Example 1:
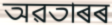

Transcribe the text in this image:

অৱতাৰৰ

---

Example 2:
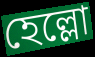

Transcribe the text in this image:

হেল্লো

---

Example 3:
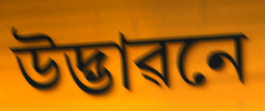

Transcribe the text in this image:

উদ্ভাৱনে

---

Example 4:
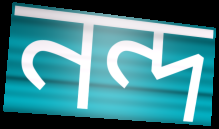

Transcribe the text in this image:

নন্দ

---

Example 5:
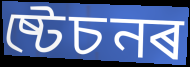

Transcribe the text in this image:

ষ্টেচনৰ